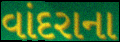
વાંદરાના